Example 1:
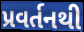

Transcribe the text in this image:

પ્રવર્તનથી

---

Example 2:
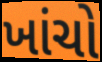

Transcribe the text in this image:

ખાંચો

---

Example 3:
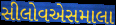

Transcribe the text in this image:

સીલોવએસમાલા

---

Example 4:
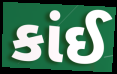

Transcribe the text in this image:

કાંઈ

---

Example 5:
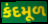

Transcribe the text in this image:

કંદમૂળ